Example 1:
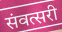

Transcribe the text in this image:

संवत्सरी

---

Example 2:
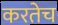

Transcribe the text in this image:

करतेच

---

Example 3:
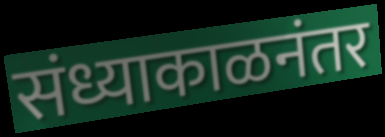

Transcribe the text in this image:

संध्याकाळनंतर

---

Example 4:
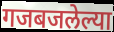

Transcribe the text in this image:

गजबजलेल्या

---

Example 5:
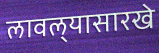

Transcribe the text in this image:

लावल्यासारखे